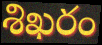
శిఖరం